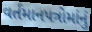
વર્તમાનપત્રોમાંનું